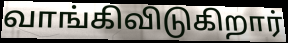
வாங்கிவிடுகிறார்